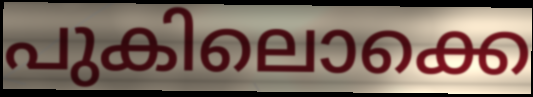
പുകിലൊക്കെ